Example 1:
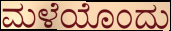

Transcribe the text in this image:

ಮಳೆಯೊಂದು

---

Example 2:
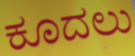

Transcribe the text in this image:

ಕೂದಲು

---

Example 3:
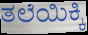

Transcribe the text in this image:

ತಲೆಯಿಕ್ಕಿ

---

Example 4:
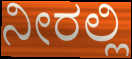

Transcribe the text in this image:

ನೀರಲ್ಲಿ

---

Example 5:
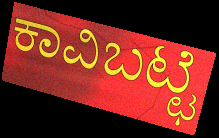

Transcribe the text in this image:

ಕಾವಿಬಟ್ಟೆ